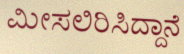
ಮೀಸಲಿರಿಸಿದ್ದಾನೆ